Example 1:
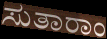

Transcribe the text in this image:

ಸುತಾರಾಂ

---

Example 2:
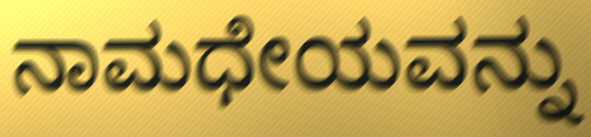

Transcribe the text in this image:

ನಾಮಧೇಯವನ್ನು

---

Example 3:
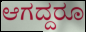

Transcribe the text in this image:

ಆಗದ್ದರೂ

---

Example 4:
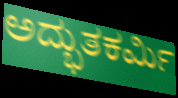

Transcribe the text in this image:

ಅದ್ಭುತಕರ್ಮಿ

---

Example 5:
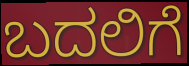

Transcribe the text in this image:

ಬದಲಿಗೆ